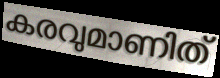
കരവുമാണിത്